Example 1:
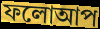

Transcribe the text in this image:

ফলোআপ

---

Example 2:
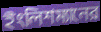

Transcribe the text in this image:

ইংলিশম্যানের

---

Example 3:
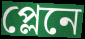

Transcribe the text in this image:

প্লেনে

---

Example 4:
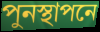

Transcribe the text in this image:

পুনস্থাপনে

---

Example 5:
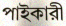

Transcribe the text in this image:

পাইকারী